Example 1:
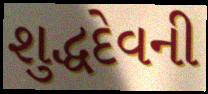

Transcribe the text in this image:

શુદ્ધદેવની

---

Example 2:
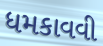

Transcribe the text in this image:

ધમકાવવી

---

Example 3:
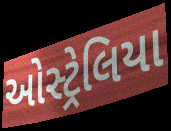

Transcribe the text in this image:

ઓસ્ટ્રેલિયા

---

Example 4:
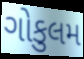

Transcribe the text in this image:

ગોકુલમ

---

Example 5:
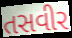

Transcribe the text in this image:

તસવીર